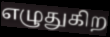
எழுதுகிற